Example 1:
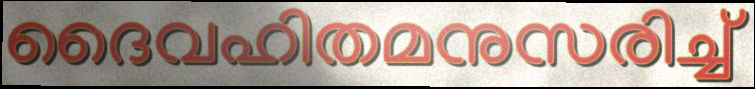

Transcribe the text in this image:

ദൈവഹിതമനുസരിച്ച്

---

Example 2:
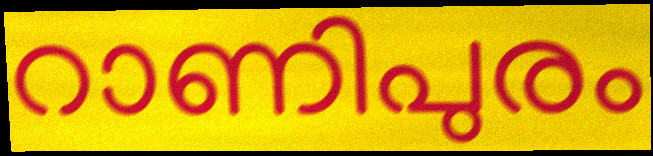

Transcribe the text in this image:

റാണിപുരം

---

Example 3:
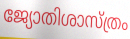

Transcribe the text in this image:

ജ്യോതിശാസ്ത്രം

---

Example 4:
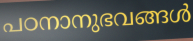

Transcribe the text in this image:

പഠനാനുഭവങ്ങൾ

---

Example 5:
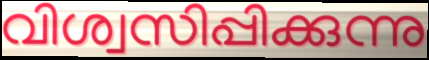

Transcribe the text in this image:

വിശ്വസിപ്പിക്കുന്നു